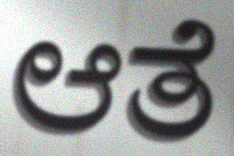
ಆತೆ